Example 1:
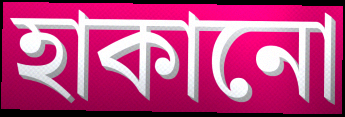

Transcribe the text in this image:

হাকানো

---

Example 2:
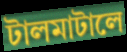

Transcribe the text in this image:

টালমাটালে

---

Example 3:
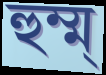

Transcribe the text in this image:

হুম্ম্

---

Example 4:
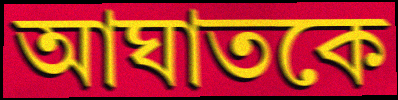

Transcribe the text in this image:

আঘাতকে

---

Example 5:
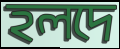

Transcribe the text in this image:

হলদে